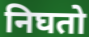
निघतो